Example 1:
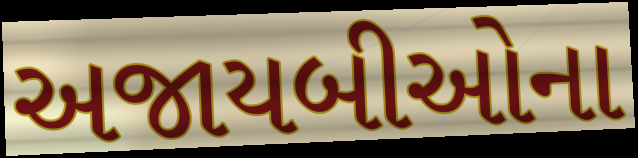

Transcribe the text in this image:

અજાયબીઓના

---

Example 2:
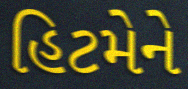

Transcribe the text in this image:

હિટમેને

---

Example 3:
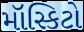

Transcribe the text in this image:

મૉસ્કિટો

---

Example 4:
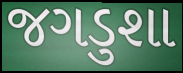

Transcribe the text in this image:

જગડુશા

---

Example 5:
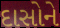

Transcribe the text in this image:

દાસોને